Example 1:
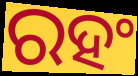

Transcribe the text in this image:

ରହଂ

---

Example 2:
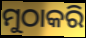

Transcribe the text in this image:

ମୁଠାକରି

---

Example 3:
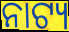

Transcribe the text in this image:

ନାଟ୍ୟ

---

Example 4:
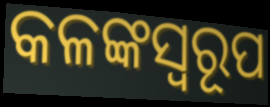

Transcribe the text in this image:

କଳଙ୍କସ୍ୱରୂପ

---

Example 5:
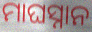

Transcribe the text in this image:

ମାଘସ୍ନାନ